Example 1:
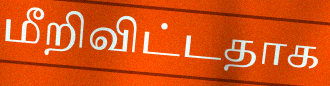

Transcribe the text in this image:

மீறிவிட்டதாக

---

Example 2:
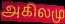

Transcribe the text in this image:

அகிலமு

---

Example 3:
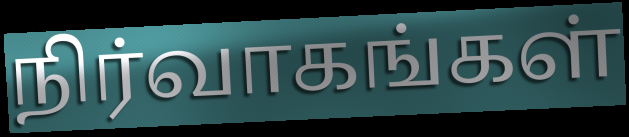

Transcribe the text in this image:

நிர்வாகங்கள்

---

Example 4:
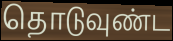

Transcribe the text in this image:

தொடுவுண்ட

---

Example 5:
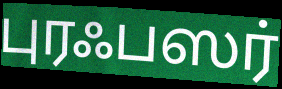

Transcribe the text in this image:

புரஃபஸர்